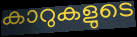
കാറുകളുടെ